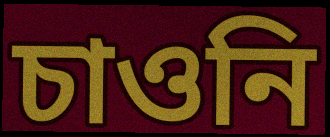
চাওনি